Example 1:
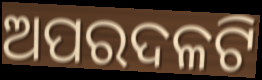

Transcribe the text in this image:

ଅପରଦଳଟି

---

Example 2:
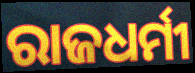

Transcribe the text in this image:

ରାଜଧର୍ମୀ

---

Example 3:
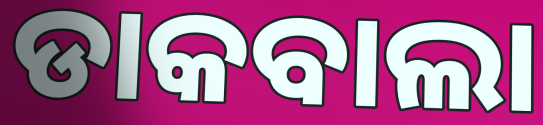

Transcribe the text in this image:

ଡାକବାଲା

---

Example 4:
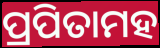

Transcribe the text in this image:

ପ୍ରପିତାମହ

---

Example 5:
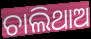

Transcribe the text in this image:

ଚାଲିଥାଅ